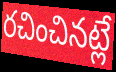
రచించినట్లే